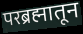
परब्रह्मातून